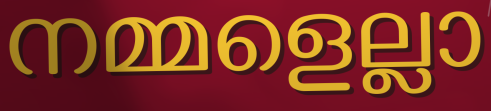
നമ്മളെല്ലാ